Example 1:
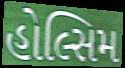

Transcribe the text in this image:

હોલ્સિમ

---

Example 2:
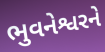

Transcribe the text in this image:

ભુવનેશ્વરને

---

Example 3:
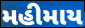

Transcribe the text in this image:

મહીમાય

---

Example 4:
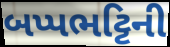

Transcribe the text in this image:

બપ્પભટ્ટિની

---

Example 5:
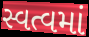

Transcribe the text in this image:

સ્વત્વમાં